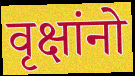
वृक्षांनो